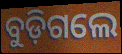
ବୁଡ଼ିଗଲେ